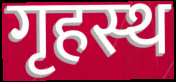
गृहस्‍थ